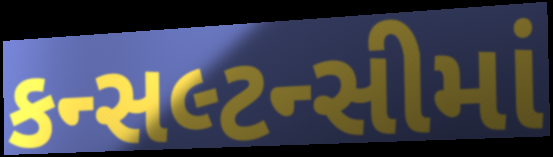
કન્સલ્ટન્સીમાં